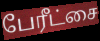
பேரீட்சை